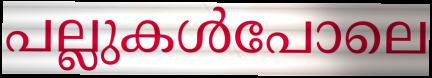
പല്ലുകൾപോലെ